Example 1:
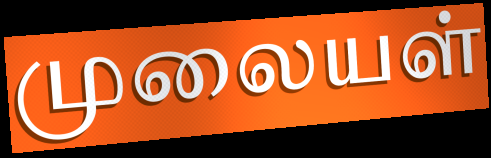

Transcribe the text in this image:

முலையள்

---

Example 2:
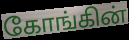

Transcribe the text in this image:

கோங்கின்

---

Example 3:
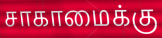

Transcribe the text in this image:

சாகாமைக்கு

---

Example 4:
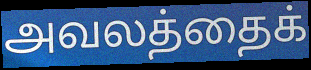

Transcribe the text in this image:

அவலத்தைக்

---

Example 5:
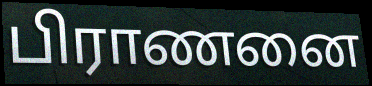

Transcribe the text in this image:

பிராணனை